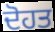
ਦੋਹਤ